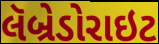
લૅબ્રેડોરાઇટ